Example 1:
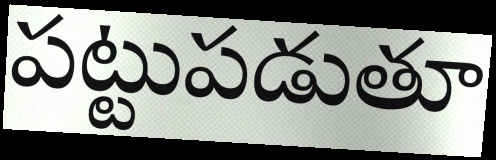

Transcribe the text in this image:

పట్టుపడుతూ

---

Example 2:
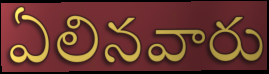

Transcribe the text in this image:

ఏలినవారు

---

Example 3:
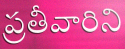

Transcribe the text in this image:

ప్రతీవారిని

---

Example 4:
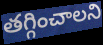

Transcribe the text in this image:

తగ్గించాలని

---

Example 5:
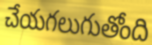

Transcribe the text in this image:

చేయగలుగుతోంది